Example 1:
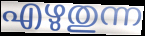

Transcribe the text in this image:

എഴുതുന്ന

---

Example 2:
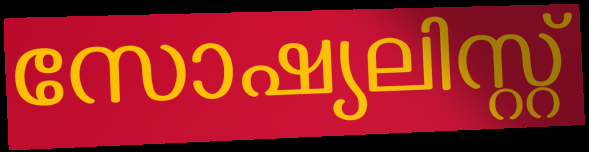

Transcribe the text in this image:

സോഷ്യലിസ്റ്റ്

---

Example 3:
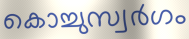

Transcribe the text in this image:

കൊച്ചുസ്വർഗം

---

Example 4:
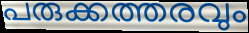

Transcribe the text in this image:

പരുക്കത്തരവും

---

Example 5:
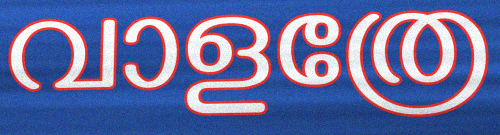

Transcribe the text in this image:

വാളത്രേ